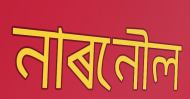
নাৰনৌল